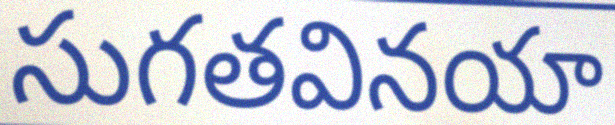
సుగతవినయా